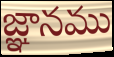
జ్ఞానము